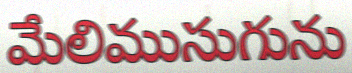
మేలిముసుగును